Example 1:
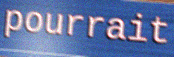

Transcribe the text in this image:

pourrait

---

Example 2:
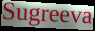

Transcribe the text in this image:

Sugreeva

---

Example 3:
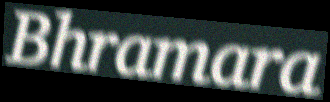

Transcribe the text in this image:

Bhramara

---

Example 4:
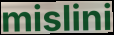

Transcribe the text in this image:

mislini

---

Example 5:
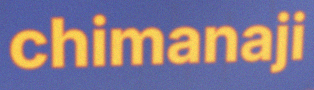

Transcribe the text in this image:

chimanaji